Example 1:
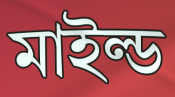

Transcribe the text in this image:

মাইল্ড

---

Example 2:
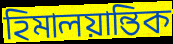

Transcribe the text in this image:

হিমালয়ান্তিক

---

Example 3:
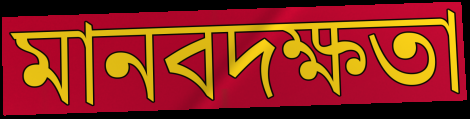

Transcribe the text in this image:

মানবদক্ষতা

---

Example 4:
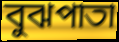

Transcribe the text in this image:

বুঝপাতা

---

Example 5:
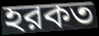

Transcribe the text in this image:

হরকত